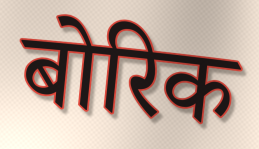
बोरिक